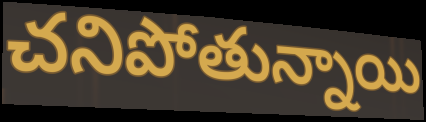
చనిపోతున్నాయి